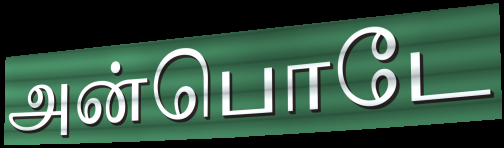
அன்பொடே